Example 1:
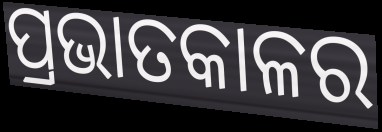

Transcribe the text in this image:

ପ୍ରଭାତକାଳର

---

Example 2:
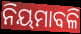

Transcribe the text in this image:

ନିୟମାବଳି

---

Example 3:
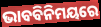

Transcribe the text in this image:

ଭାବବିନିମୟରେ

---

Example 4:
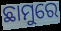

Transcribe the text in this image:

ଛାମୁରେ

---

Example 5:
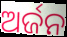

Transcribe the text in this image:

ଅର୍ଜନ